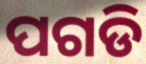
ପଗଡି